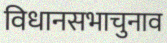
विधानसभाचुनाव